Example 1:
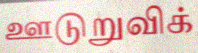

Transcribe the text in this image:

ஊடுறுவிக்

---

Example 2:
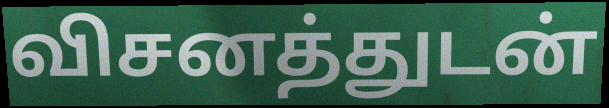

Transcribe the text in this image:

விசனத்துடன்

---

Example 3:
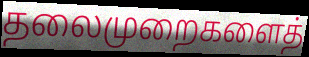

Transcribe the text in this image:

தலைமுறைகளைத்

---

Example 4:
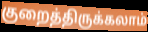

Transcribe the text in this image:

குறைத்திருக்கலாம்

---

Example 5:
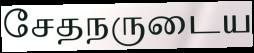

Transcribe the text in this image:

சேதநருடைய